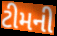
ટીમની